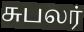
சுபலர்